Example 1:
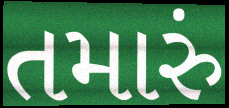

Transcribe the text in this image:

તમારું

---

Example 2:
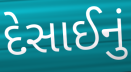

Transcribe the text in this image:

દેસાઈનું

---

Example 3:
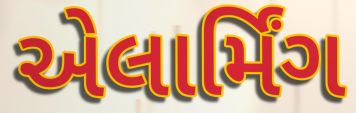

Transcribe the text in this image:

એલાર્મિંગ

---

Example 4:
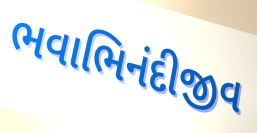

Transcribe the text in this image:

ભવાભિનંદીજીવ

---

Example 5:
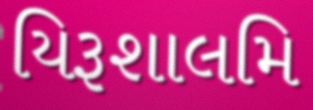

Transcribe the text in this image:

યિરૂશાલમિ